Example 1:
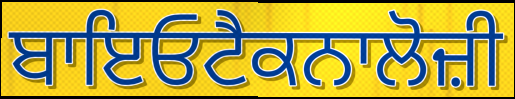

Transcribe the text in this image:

ਬਾਇਓਟੈਕਨਾਲੋਜ਼ੀ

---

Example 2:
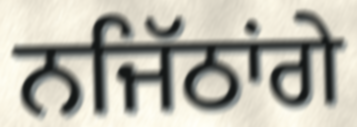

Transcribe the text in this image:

ਨਜਿੱਠਾਂਗੇ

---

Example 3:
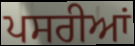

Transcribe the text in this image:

ਪਸਰੀਆਂ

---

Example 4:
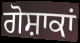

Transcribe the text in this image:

ਗੋਸ਼ਾਕਾਂ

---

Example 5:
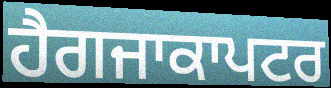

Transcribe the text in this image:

ਹੈਗਜਾਕਾਪਟਰ